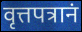
वृत्तपत्रानं